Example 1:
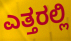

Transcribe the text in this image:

ಎತ್ತರಲ್ಲಿ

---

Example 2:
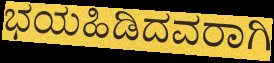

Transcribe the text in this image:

ಭಯಹಿಡಿದವರಾಗಿ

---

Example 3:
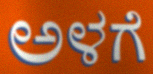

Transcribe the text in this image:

ಅಳಗೆ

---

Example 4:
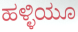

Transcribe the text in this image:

ಹಳ್ಳಿಯೂ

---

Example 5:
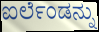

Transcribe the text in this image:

ಐರ್ಲೆಂಡನ್ನು